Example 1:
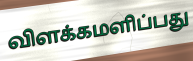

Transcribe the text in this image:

விளக்கமளிப்பது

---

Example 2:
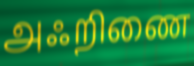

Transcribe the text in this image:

அஃறிணை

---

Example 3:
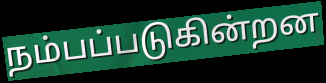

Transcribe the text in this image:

நம்பப்படுகின்றன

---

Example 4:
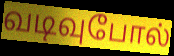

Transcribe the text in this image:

வடிவுபோல்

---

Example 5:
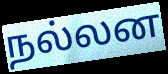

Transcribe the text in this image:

நல்லன